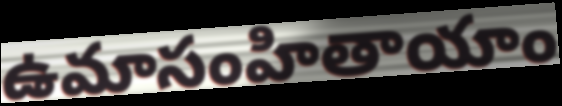
ఉమాసంహితాయాం